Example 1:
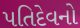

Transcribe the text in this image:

પતિદેવનો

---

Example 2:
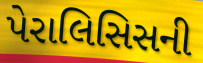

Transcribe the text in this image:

પેરાલિસિસની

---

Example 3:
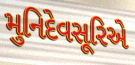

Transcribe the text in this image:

મુનિદેવસૂરિએ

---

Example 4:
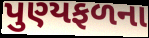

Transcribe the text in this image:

પુણ્યફળના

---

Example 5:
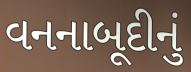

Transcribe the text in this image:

વનનાબૂદીનું